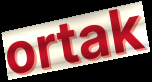
ortak